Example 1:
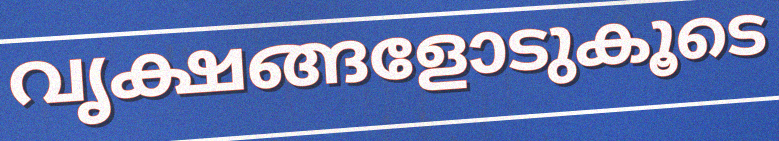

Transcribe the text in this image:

വൃക്ഷങ്ങളോടുകൂടെ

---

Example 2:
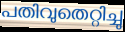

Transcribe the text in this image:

പതിവുതെറ്റിച്ചു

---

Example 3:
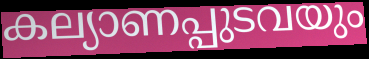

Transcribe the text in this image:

കല്യാണപ്പുടവയും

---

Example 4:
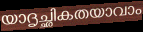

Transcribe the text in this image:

യാദൃച്ഛികതയാവാം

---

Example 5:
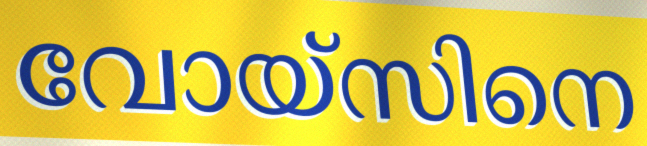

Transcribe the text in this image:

വോയ്സിനെ